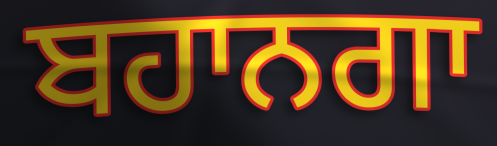
ਬਹਾਨਗਾ